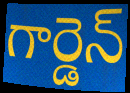
గార్డెన్